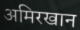
अमिरखान